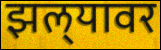
झल्यावर